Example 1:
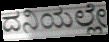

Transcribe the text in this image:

ದನಿಯಲ್ಲೇ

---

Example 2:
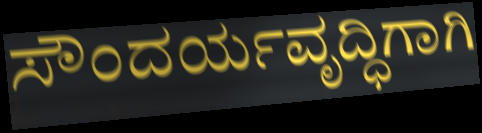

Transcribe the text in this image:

ಸೌಂದರ್ಯವೃದ್ಧಿಗಾಗಿ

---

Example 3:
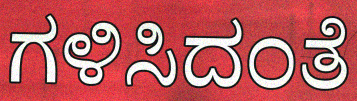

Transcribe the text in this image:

ಗಳಿಸಿದಂತೆ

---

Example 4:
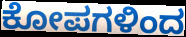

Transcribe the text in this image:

ಕೋಪಗಳಿಂದ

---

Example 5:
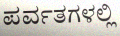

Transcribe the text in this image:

ಪರ್ವತಗಳಲ್ಲಿ